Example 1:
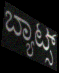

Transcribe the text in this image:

ಬ್ಯಾಟ್ಸ್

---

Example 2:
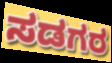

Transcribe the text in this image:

ಸಡಗರ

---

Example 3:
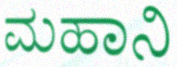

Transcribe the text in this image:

ಮಹಾನಿ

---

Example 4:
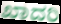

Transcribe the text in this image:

ಖಾದರಿ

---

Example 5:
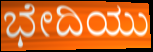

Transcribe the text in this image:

ಭೇದಿಯು